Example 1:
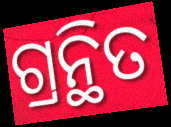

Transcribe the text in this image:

ଗ୍ରନ୍ଥିତ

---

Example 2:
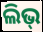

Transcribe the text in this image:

ଲିଭ୍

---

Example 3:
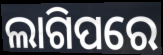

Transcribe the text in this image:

ଲାଗିପରେ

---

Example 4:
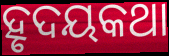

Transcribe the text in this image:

ହୃଦୟକଥା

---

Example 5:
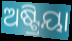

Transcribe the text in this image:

ଅଷ୍ଟ୍ରିୟା